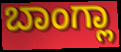
ಬಾಂಗ್ಲಾ